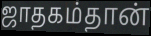
ஜாதகம்தான்